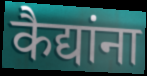
कैद्यांना